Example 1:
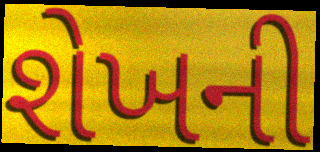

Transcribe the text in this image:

શેખની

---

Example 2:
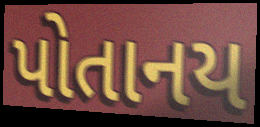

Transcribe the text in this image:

પોતાનય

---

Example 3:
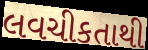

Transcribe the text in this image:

લવચીકતાથી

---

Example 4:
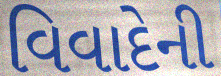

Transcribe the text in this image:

વિવાદેની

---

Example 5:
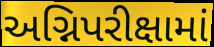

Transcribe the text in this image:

અગ્નિપરીક્ષામાં